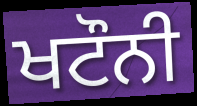
ਖਟੌਨੀ